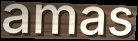
amas